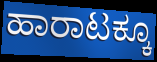
ಹಾರಾಟಕ್ಕೂ